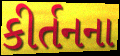
કીર્તનના